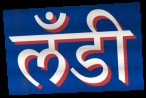
लँडी